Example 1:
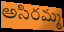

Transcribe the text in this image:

అసిరమ్మ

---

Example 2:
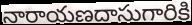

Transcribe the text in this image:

నారాయణదాసుగారికి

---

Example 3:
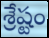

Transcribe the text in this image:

శ్రేష్టం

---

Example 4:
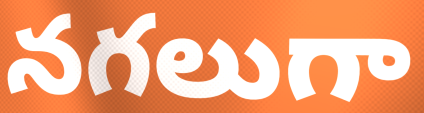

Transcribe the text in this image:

నగలుగా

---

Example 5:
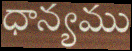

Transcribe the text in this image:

ధాన్యము